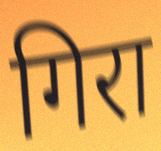
गिरा